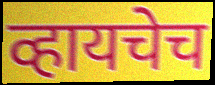
व्हायचेच